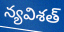
న్యవిశత్